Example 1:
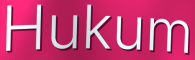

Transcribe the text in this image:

Hukum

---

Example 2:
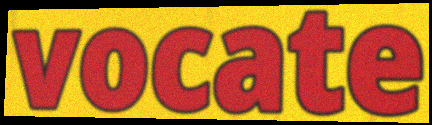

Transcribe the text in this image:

vocate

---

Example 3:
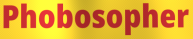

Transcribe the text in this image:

Phobosopher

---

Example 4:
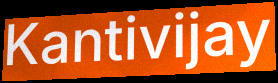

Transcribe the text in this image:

Kantivijay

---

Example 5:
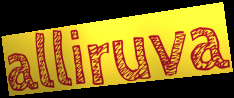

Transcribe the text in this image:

alliruva